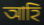
আহি